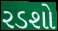
રડશો